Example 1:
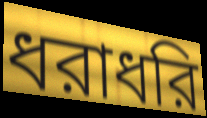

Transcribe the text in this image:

ধরাধরি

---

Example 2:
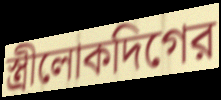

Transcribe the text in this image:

স্ত্রীলোকদিগের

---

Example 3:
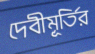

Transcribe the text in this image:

দেবীমূর্তির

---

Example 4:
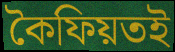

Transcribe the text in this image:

কৈফিয়তই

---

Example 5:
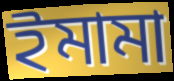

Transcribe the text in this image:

ইমামা